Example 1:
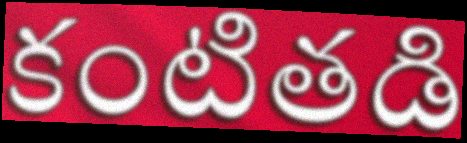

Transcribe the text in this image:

కంటితడి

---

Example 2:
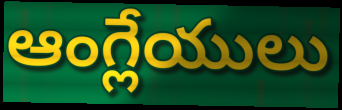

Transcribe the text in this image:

ఆంగ్లేయులు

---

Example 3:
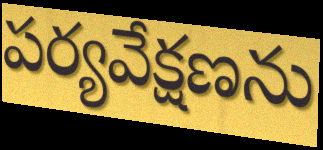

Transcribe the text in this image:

పర్యవేక్షణను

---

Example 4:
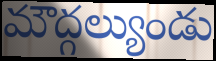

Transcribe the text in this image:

మౌద్గల్యుండు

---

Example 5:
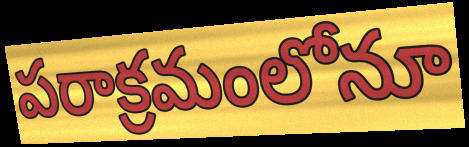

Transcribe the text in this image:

పరాక్రమంలోనూ